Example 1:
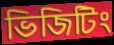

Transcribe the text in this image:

ভিজিটিং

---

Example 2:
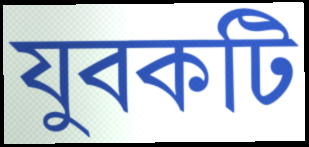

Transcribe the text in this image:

যুবকটি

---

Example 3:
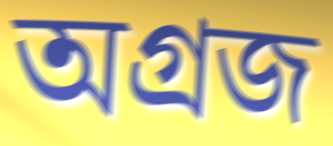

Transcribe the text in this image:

অগ্রজ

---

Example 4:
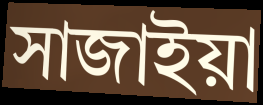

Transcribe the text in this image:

সাজাইয়া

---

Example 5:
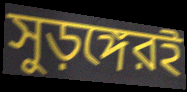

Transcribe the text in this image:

সুড়ঙ্গেরই